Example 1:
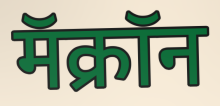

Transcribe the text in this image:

मॅक्रॉन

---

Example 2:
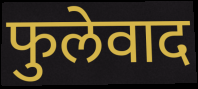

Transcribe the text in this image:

फुलेवाद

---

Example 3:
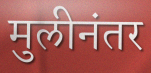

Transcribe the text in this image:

मुलीनंतर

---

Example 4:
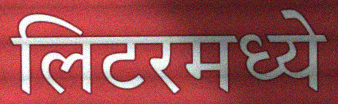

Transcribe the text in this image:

लिटरमध्ये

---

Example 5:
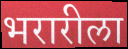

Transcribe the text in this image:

भरारीला